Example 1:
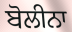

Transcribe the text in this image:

ਬੋਲੀਨਾ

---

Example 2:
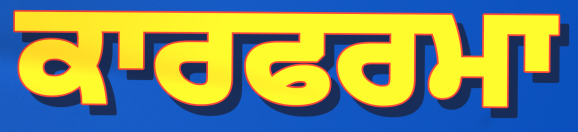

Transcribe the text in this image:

ਕਾਰਫਰਮਾ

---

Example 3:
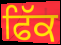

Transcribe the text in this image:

ਫਿੱਕ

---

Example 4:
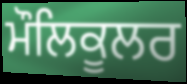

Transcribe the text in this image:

ਮੌਲਿਕੂਲਰ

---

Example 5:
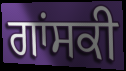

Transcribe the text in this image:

ਗਾਂਸਕੀ